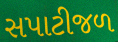
સપાટીજળ